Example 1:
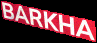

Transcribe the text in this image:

BARKHA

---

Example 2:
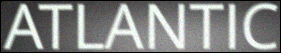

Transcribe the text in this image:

ATLANTIC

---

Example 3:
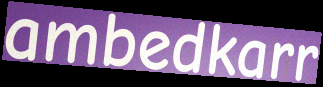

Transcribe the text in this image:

ambedkarr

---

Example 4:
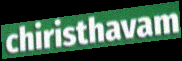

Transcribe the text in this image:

chiristhavam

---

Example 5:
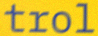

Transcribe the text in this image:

trol